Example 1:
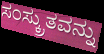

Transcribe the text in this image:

ಸಂಸ್ಕ್ರುತವನ್ನು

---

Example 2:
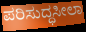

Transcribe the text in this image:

ಪರಿಸುದ್ಧಸೀಲಾ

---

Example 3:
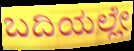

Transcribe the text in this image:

ಬದಿಯಲ್ಲೇ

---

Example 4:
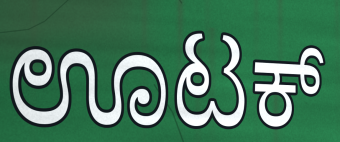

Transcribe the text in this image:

ಊಟಕ್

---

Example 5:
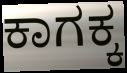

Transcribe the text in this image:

ಕಾಗಕ್ಕ